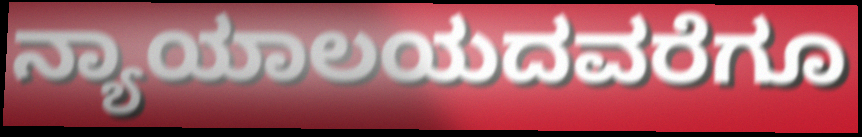
ನ್ಯಾಯಾಲಯದವರೆಗೂ